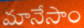
మానేసాం